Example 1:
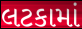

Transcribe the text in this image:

લટકામાં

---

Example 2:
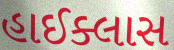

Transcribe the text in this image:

હાઈક્લાસ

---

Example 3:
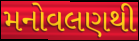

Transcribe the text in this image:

મનોવલણથી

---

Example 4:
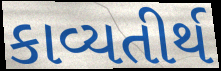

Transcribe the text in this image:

કાવ્યતીર્થ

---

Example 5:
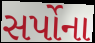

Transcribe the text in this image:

સર્પોના